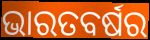
ଭାରତବର୍ଷର